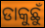
ଡାକୁଛୁଁ